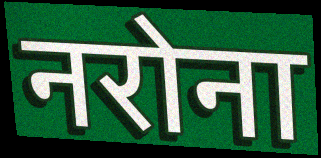
नरोना